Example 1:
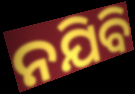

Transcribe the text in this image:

ନଯିବି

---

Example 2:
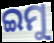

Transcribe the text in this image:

ଇମୁ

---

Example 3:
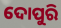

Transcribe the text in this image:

ଦୋପୁରି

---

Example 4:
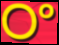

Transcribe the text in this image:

ଠଂ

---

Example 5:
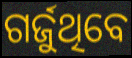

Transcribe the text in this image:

ଗର୍ଜୁଥିବେ